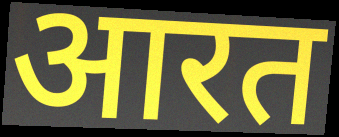
आरत